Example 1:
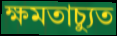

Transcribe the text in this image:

ক্ষমতাচ্যুত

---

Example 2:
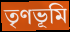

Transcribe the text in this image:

তৃণভূমি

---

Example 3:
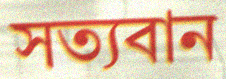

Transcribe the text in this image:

সত্যবান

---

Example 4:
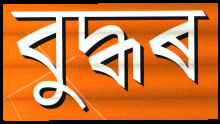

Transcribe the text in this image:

বুদ্ধৰ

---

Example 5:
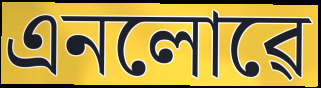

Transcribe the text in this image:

এনলোৱে